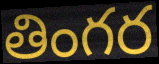
తింగర